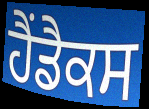
ਹੈਂਡੈਕਸ